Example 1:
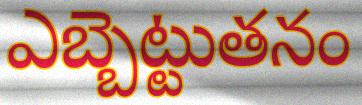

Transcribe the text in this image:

ఎబ్బెట్టుతనం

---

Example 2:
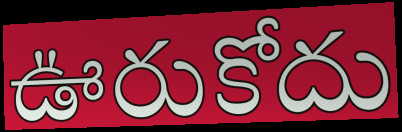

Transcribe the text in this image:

ఊరుకోదు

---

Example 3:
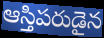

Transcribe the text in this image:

ఆస్తిపరుడైన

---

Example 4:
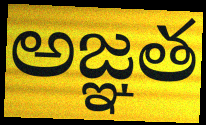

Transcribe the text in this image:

అజ్ఞత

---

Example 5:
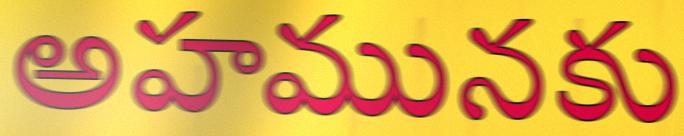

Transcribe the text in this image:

అహమునకు